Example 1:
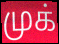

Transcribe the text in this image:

முக்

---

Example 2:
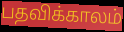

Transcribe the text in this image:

பதவிக்காலம்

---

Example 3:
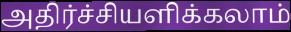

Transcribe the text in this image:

அதிர்ச்சியளிக்கலாம்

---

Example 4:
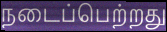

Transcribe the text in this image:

நடைப்பெற்றது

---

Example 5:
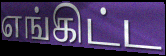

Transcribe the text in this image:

எங்கிட்ட